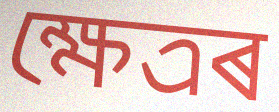
ক্ষেত্ৰৰ